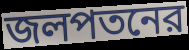
জলপতনের